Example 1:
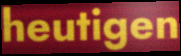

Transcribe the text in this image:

heutigen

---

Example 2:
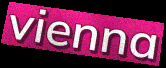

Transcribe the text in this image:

vienna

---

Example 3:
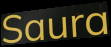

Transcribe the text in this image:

Saura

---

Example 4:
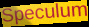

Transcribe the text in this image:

Speculum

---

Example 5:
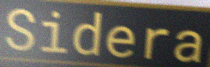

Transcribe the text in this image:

Sidera